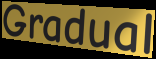
Gradual